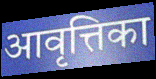
आवृत्तिका